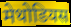
मेथोडियस